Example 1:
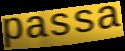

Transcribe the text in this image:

passa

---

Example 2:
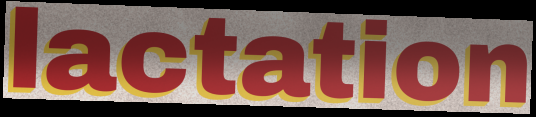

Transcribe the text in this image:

lactation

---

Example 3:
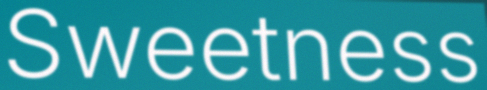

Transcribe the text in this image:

Sweetness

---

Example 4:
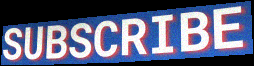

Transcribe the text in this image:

SUBSCRIBE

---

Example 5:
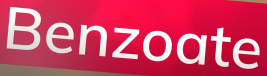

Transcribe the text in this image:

Benzoate